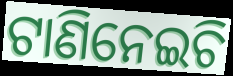
ଟାଣିନେଇଚି